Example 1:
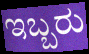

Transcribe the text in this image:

ಇಬ್ಬರು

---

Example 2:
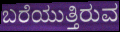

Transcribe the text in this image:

ಬರೆಯುತ್ತಿರುವ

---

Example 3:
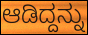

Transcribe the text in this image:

ಆಡಿದ್ದನ್ನು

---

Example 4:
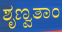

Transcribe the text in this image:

ಶೃಣ್ವತಾಂ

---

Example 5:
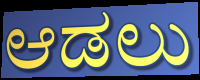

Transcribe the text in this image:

ಆಡಲು